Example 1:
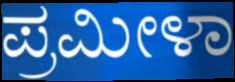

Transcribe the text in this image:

ಪ್ರಮೀಳಾ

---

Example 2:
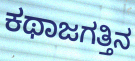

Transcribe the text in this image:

ಕಥಾಜಗತ್ತಿನ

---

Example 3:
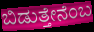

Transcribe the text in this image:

ಬಿಡುತ್ತೇನೆಂಬ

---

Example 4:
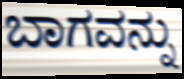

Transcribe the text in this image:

ಬಾಗವನ್ನು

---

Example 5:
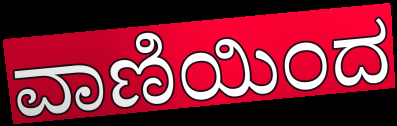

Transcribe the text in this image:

ವಾಣಿಯಿಂದ